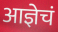
आज्ञेचं